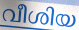
വീശിയ